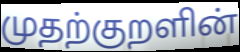
முதற்குறளின்